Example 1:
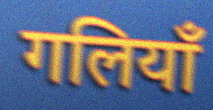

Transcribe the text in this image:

गलियाँ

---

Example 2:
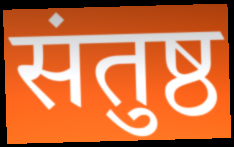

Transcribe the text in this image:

संतुष्ठ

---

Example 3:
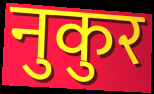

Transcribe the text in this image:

नुकुर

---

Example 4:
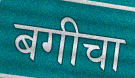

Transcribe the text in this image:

बगीचा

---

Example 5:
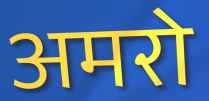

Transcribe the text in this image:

अमरो